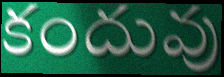
కందువు